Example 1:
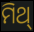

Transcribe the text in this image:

ମିଥ୍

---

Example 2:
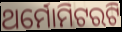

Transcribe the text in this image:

ଥର୍ମୋମିଟରଟି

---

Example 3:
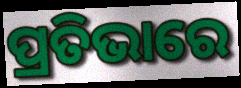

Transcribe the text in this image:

ପ୍ରତିଭାରେ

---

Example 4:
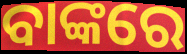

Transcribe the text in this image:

ବାଙ୍କରେ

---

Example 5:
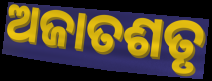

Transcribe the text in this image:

ଅଜାତଶତୃ